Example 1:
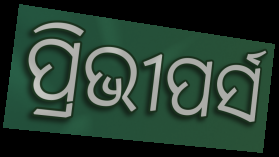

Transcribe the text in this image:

ପ୍ରିଭୀପର୍ସ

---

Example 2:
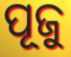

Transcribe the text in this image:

ପୂଜୁ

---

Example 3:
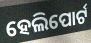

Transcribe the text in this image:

ହେଲିପୋର୍ଟ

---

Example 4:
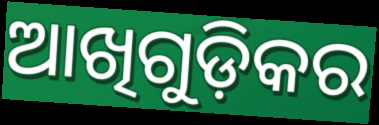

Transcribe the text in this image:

ଆଖିଗୁଡ଼ିକର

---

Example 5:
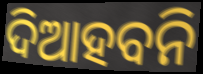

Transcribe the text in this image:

ଦିଆହବନି